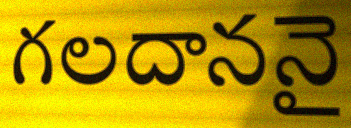
గలదాననై